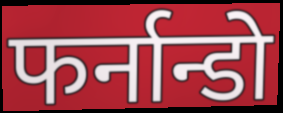
फर्नान्डो